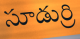
సూడుర్రి